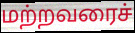
மற்றவரைச்